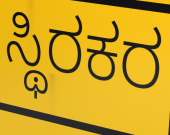
ಸ್ಥಿರಕರ